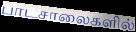
பாடசாலைகளில்